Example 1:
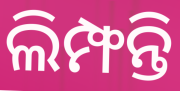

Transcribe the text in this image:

ଲିମ୍ଫନ୍ତି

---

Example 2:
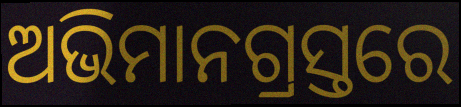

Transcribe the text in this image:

ଅଭିମାନଗ୍ରସ୍ତରେ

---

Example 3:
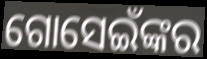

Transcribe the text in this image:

ଗୋସେଇଁଙ୍କର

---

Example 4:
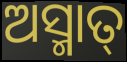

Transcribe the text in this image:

ଅସ୍ମାତ୍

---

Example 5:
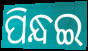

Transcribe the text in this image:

ପିନ୍ଧଇ